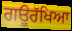
ਗਊਰੱਖਿਆ